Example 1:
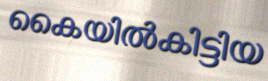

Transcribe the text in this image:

കൈയിൽകിട്ടിയ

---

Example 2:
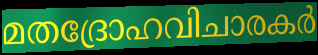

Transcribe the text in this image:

മതദ്രോഹവിചാരകർ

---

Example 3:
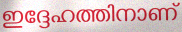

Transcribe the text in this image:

ഇദ്ദേഹത്തിനാണ്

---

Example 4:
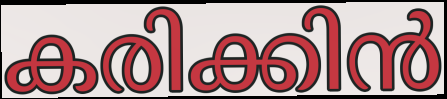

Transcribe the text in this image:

കരിക്കിൻ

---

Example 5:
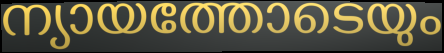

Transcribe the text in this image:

ന്യായത്തോടെയും